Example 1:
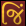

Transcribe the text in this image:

જિં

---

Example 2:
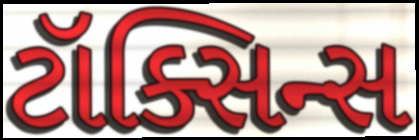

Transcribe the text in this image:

ટૉક્સિન્સ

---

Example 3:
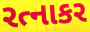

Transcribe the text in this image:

રત્નાકર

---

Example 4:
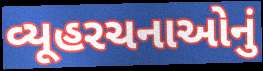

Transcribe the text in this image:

વ્યૂહરચનાઓનું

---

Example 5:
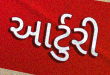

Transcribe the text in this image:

આર્ટુરી